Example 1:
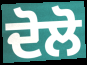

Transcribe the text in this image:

ਦੋਲੋ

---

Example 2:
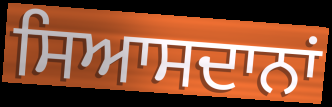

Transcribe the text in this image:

ਸਿਆਸਦਾਨਾਂ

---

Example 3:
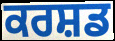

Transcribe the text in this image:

ਕਰਸ਼ਡ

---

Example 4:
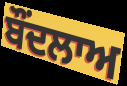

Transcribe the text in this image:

ਬੌਂਦਲਾਅ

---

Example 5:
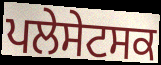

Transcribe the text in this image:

ਪਲੇਸੇਟਸਕ